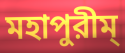
মহাপুরীম্